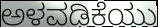
ಅಳವಡಿಕೆಯು